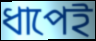
ধাপেই